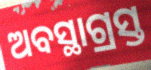
ଅବସ୍ଥାଗ୍ରସ୍ତ